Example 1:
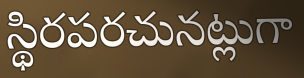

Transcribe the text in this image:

స్థిరపరచునట్లుగా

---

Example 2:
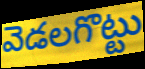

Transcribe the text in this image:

వెడలగొట్టు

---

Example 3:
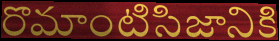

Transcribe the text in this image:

రొమాంటిసిజానికి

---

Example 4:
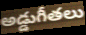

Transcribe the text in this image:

అడ్డుగీతలు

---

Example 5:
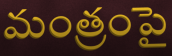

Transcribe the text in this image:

మంత్రంపై